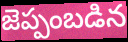
జెప్పంబడిన